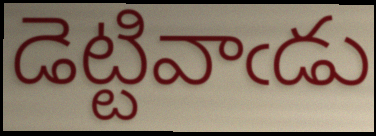
డెట్టివాఁడు